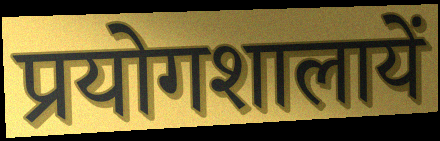
प्रयोगशालायें